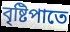
বৃষ্টিপাতে